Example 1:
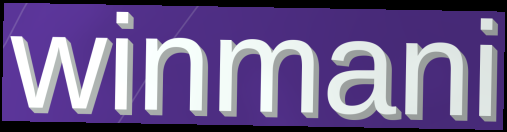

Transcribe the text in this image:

winmani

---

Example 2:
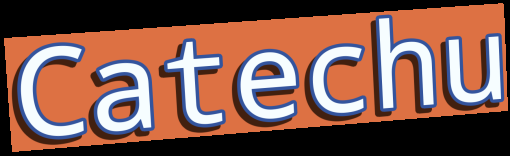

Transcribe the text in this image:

Catechu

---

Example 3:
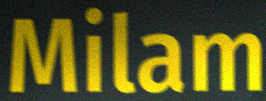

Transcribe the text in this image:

Milam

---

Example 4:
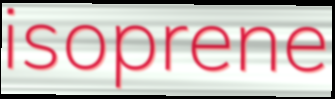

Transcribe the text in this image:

isoprene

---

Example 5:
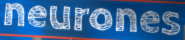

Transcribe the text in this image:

neurones